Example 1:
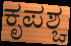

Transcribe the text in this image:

ಕೃಪಶ್ಚ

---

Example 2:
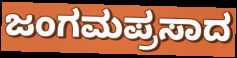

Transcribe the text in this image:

ಜಂಗಮಪ್ರಸಾದ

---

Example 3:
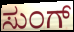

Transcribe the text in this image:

ಸುಂಗ್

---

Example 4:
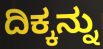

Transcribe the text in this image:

ದಿಕ್ಕನ್ನು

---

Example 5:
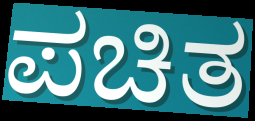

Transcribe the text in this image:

ಪಚಿತ